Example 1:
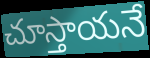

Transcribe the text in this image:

చూస్తాయనే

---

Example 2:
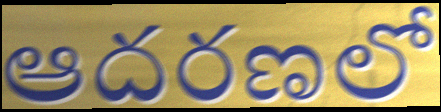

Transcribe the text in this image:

ఆదరణలో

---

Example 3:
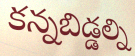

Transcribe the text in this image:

కన్నబిడ్డల్ని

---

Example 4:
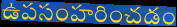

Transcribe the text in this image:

ఉపసంహరించడం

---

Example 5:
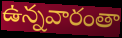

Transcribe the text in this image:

ఉన్నవారంతా